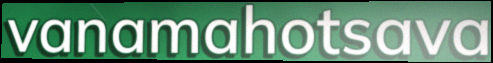
vanamahotsava